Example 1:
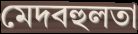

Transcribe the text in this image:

মেদবহুলতা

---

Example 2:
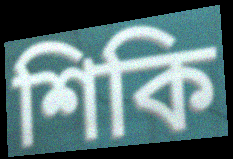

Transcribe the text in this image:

শিকি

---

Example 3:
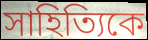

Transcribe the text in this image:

সাহিত্যিকে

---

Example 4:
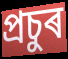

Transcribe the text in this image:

প্ৰচুৰ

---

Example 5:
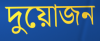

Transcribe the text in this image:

দুয়োজন